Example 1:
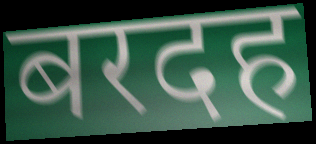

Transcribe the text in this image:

बरदह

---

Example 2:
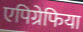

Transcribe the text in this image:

एपिग्रेफिया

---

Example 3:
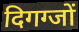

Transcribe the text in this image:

दिगग्जों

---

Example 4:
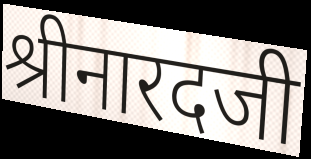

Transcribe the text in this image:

श्रीनारदजी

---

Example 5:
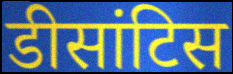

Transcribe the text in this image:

डीसांटिस